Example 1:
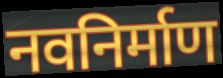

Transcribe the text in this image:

नवनिर्माण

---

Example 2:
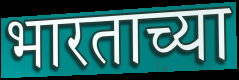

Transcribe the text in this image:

भारताच्या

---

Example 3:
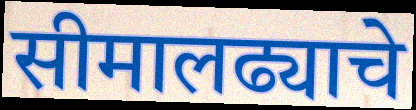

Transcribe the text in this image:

सीमालढ्याचे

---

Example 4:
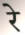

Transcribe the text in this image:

रे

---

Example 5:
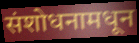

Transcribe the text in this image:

संशोधनामधून